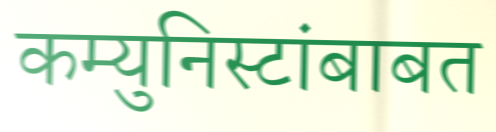
कम्युनिस्टांबाबत